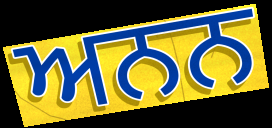
ਅਨਨ